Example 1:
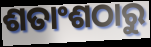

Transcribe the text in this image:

ଶତାଂଶଠାରୁ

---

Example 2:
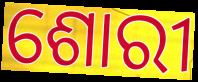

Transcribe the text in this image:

ଶୋରୀ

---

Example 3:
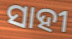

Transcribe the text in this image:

ସାହୀ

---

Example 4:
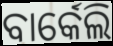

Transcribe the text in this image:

ବାର୍କେଲି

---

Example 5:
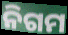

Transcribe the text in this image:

ନିଗମ